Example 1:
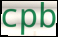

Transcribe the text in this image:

cpb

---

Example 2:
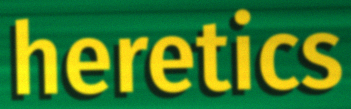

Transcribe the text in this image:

heretics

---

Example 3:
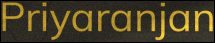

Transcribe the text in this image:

Priyaranjan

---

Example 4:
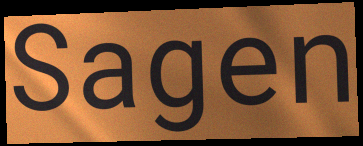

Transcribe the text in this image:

Sagen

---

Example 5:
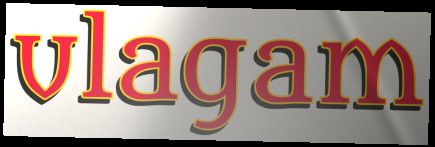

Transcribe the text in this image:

ulagam